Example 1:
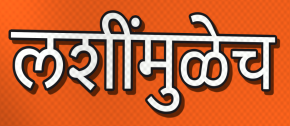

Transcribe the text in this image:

लशींमुळेच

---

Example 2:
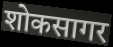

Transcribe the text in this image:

शोकसागर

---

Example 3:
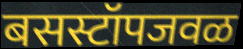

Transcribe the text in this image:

बसस्टॉपजवळ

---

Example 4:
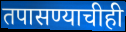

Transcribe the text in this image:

तपासण्याचीही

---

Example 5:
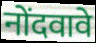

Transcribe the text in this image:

नोंदवावे